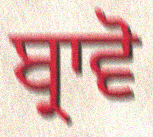
ਬ੍ਰਾਵੋ